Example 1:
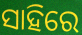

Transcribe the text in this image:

ସାହିରେ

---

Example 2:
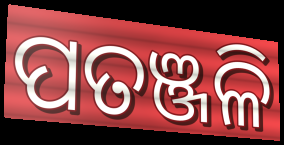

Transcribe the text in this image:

ପତଞ୍ଜଳି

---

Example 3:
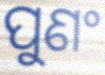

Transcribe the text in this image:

ପୁଣଂ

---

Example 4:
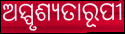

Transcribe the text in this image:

ଅସ୍ପୃଶ୍ୟତାରୂପୀ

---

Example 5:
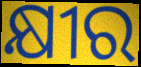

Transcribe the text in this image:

କ୍ଷୀର